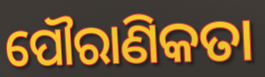
ପୌରାଣିକତା